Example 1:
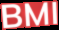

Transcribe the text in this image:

BMI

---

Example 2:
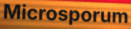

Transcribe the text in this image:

Microsporum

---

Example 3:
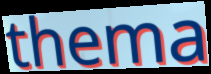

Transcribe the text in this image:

thema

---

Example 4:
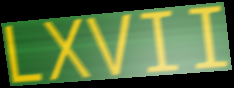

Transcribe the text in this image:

LXVII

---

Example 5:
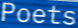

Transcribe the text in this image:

Poets